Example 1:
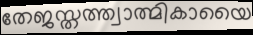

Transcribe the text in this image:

തേജസ്തത്ത്വാത്മികായൈ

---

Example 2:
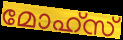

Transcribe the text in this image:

മോഹ്സ്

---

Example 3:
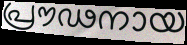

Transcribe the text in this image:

പ്രൗഢനായ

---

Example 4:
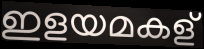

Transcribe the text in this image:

ഇളയമകള്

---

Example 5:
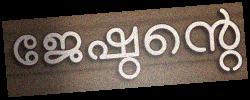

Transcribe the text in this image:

ജേഷ്ഠന്റെ